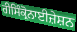
ਰੀਸਿੰਕ੍ਰੋਨਾਈਜ਼ੇਸ਼ਨ